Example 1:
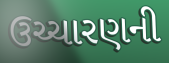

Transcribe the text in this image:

ઉચ્ચારણની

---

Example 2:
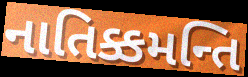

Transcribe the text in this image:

નાતિક્કમન્તિ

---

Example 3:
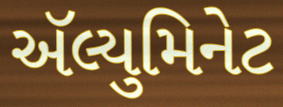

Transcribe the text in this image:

ઍલ્યુમિનેટ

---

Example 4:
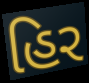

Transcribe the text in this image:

હિર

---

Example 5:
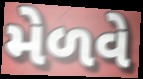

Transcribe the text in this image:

મેળવે